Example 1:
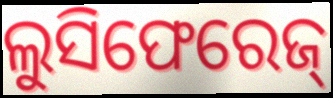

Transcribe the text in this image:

ଲୁସିଫେରେଜ୍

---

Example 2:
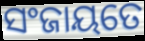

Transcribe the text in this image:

ସଂଜାୟତେ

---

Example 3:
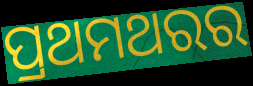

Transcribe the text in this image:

ପ୍ରଥମଥରର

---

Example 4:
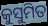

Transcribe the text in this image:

କୁସୁମିତ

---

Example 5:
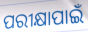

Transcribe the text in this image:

ପରୀକ୍ଷାପାଇଁ